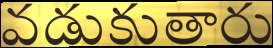
వడుకుతారు